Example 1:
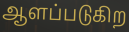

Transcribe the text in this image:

ஆளப்படுகிற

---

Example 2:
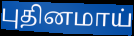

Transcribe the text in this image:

புதினமாய்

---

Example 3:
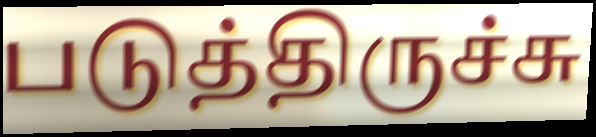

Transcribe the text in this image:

படுத்திருச்சு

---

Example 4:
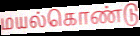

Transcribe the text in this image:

மயல்கொண்டு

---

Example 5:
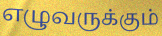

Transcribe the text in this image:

எழுவருக்கும்